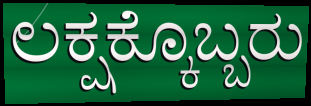
ಲಕ್ಷಕ್ಕೊಬ್ಬರು